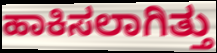
ಹಾಕಿಸಲಾಗಿತ್ತು